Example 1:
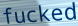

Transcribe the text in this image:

fucked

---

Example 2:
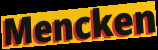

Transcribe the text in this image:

Mencken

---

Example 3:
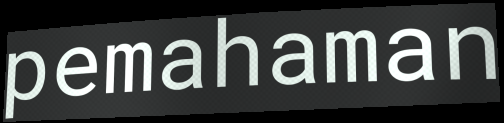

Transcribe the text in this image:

pemahaman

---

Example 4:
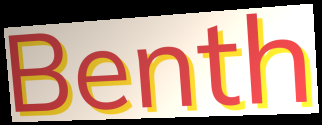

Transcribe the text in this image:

Benth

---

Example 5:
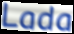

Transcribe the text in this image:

Lada